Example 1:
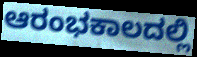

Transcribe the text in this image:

ಆರಂಭಕಾಲದಲ್ಲಿ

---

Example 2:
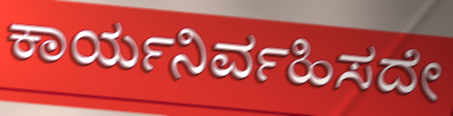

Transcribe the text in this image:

ಕಾರ್ಯನಿರ್ವಹಿಸದೇ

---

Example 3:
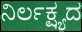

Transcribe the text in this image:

ನಿರ್ಲಕ್ಷ್ಯದ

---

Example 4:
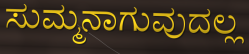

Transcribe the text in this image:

ಸುಮ್ಮನಾಗುವುದಲ್ಲ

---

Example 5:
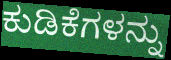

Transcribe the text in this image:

ಕುಡಿಕೆಗಳನ್ನು